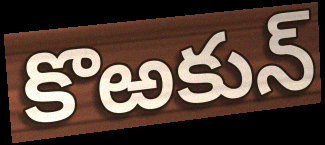
కొఱకున్